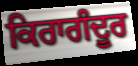
ਕਿਰਾਗੰਦੂਰ